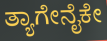
ತ್ಯಾಗೇನೈಕೇ